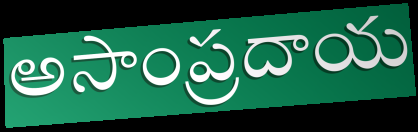
అసాంప్రదాయ